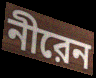
নীরেন